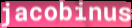
jacobinus